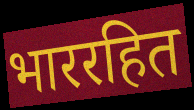
भाररहित